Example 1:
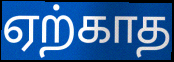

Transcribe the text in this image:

ஏற்காத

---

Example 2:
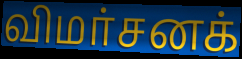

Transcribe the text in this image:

விமர்சனக்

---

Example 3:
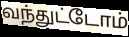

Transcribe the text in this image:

வந்துட்டோம்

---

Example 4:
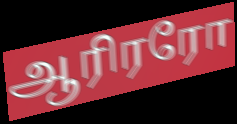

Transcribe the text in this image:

ஆரிரரோ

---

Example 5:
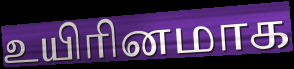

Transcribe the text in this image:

உயிரினமாக